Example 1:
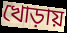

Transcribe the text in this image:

খোড়ায়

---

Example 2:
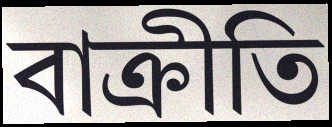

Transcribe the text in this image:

বাক্রীতি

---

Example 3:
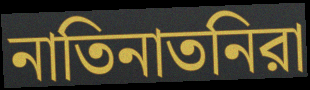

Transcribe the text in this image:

নাতিনাতনিরা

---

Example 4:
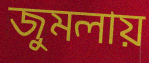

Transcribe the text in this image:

জুমলায়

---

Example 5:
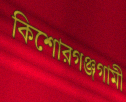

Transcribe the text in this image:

কিশোরগঞ্জগামী